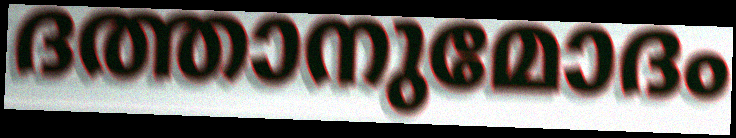
ദത്താനുമോദം